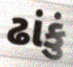
ઢાંકું